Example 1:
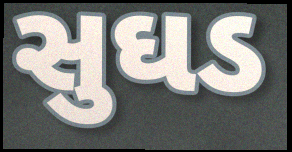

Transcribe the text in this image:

સુઘડ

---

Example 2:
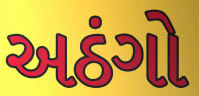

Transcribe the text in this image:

અઠંગો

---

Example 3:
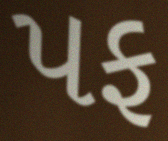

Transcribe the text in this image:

પફ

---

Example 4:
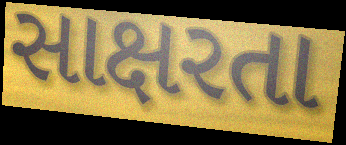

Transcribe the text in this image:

સાક્ષરતા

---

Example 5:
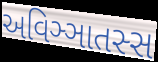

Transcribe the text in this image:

અવિઞ્ઞાતસ્સ